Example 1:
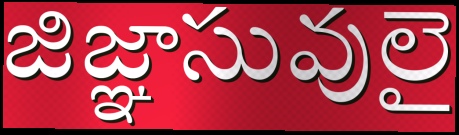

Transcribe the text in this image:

జిజ్ఞాసువులై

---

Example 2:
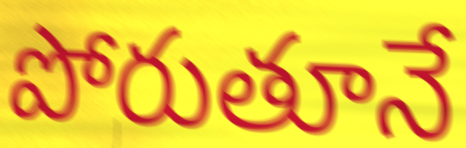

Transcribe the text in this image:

పోరుతూనే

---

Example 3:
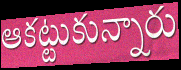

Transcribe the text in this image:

ఆకట్టుకున్నారు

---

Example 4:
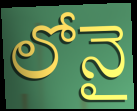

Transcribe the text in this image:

లోనై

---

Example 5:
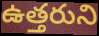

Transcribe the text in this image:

ఉత్తరుని